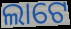
ଲାଟେ